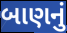
બાણનું